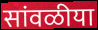
सांवळीया